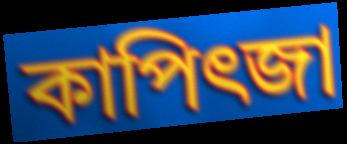
কাপিৎজা